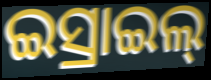
ଇସ୍ରାଇଲ୍